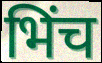
भिंच